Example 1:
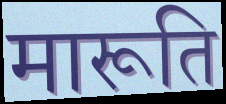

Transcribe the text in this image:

मारूति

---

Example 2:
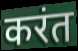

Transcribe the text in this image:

करंत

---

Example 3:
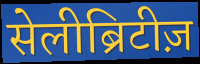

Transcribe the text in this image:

सेलीब्रिटीज़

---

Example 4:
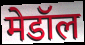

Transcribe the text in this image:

मेडॉल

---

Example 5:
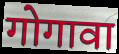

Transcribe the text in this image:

गोगावा